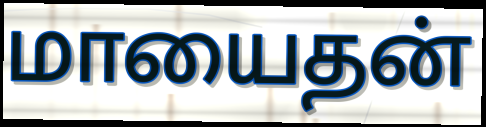
மாயைதன்